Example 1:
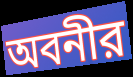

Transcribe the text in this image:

অবনীর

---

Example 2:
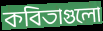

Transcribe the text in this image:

কবিতাগুলো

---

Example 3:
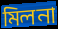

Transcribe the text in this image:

মিলনা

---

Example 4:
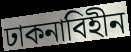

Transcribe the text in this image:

ঢাকনাবিহীন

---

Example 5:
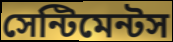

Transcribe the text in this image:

সেন্টিমেন্টস